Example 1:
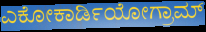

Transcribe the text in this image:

ಎಕೋಕಾರ್ಡಿಯೋಗ್ರಾಮ್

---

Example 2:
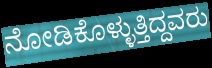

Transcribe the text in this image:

ನೋಡಿಕೊಳ್ಳುತ್ತಿದ್ದವರು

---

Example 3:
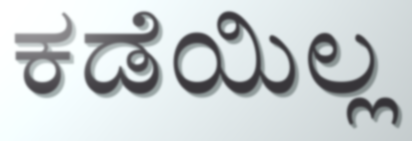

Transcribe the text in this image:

ಕಡೆಯಿಲ್ಲ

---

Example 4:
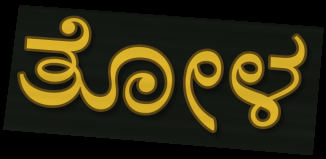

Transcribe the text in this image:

ತೋಳ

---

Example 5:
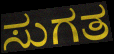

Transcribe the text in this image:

ಸುಗತ